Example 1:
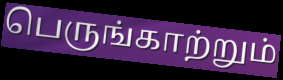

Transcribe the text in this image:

பெருங்காற்றும்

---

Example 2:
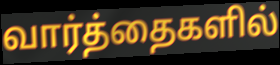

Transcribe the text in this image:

வார்த்தைகளில்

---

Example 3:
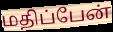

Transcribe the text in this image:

மதிப்பேன்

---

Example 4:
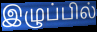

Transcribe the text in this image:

இழுப்பில்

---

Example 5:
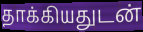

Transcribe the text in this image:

தாக்கியதுடன்